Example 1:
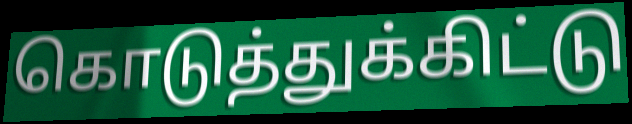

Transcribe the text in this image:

கொடுத்துக்கிட்டு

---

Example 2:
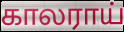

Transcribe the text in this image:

காலராய்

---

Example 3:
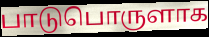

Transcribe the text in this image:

பாடுபொருளாக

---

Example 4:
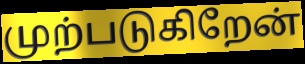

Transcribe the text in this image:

முற்படுகிறேன்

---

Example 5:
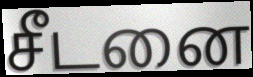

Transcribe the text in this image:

சீடனை